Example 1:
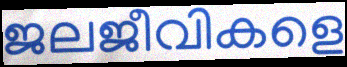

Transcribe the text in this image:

ജലജീവികളെ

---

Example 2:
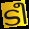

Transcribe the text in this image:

ടീ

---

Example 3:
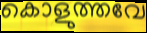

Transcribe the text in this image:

കൊളുത്തവേ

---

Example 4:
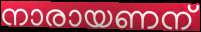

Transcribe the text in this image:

നാരായണന്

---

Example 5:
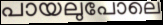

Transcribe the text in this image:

പായലുപോലെ